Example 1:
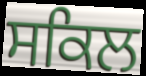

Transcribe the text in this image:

ਸਕਿਲ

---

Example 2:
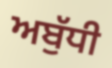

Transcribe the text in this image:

ਅਬੁੱਧੀ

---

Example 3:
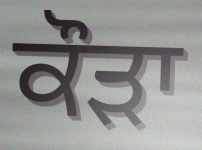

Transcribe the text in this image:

ਕੌਡ਼ਾ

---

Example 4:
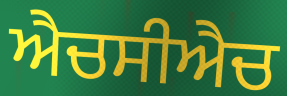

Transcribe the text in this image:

ਐਚਸੀਐਚ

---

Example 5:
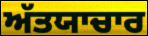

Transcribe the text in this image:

ਅੱਤਯਾਚਾਰ